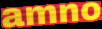
amno